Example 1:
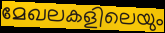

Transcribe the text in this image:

മേഖലകളിലെയും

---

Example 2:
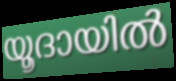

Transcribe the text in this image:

യൂദായിൽ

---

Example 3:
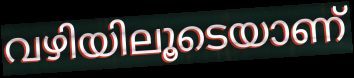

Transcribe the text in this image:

വഴിയിലൂടെയാണ്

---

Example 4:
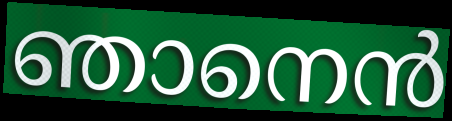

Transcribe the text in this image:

ഞാനെൻ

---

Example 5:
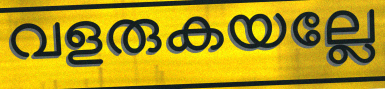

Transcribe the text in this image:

വളരുകയല്ലേ